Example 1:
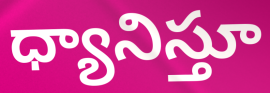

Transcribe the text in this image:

ధ్యానిస్తూ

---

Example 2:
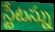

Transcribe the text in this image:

స్టేటస్ను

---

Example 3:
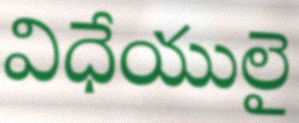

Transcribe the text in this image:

విధేయులై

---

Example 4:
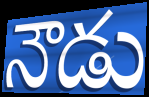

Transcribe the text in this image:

నౌడు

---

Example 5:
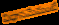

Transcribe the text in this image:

విధానమేమంటే